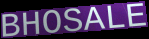
BHOSALE